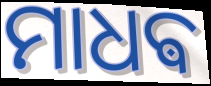
ମାଧଵ